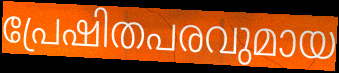
പ്രേഷിതപരവുമായ